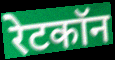
रेटकॉन